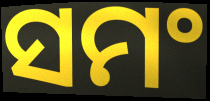
ସମଂ